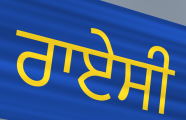
ਰਾਏਸੀ